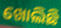
ଖୋଲିଛି